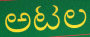
ಅಟಲ